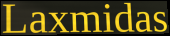
Laxmidas